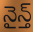
నైన్త్